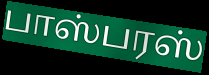
பாஸ்பரஸ்